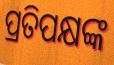
ପ୍ରତିପକ୍ଷଙ୍କ